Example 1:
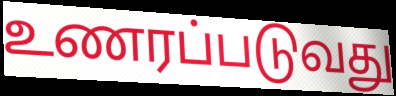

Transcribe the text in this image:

உணரப்படுவது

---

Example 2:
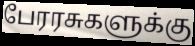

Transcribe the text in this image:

பேரரசுகளுக்கு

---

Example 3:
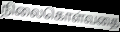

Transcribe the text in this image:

நிலைகொள்வதை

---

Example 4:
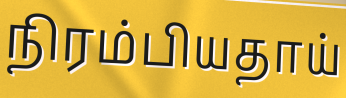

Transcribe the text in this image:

நிரம்பியதாய்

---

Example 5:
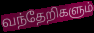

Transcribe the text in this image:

வந்தேறிகளும்